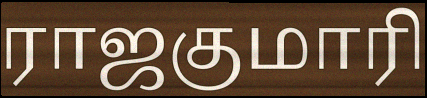
ராஜகுமாரி